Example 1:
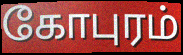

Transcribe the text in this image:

கோபுரம்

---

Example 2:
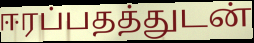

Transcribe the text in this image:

ஈரப்பதத்துடன்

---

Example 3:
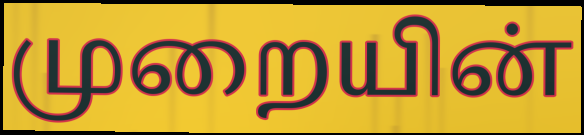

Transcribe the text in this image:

முறையின்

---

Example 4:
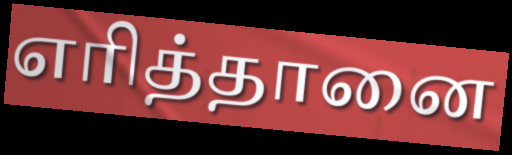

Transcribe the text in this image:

எரித்தானை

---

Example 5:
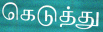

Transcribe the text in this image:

கெடுத்து